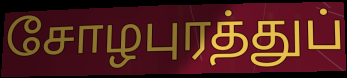
சோழபுரத்துப்